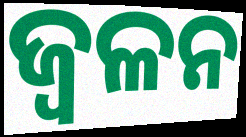
ଜ୍ଵଳନ